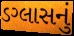
ડગ્લાસનું